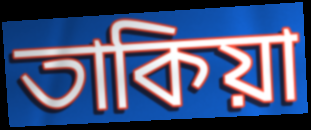
তাকিয়া